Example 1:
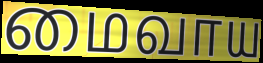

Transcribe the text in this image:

மைவாய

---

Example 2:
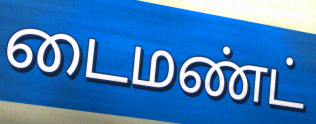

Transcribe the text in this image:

டைமண்ட்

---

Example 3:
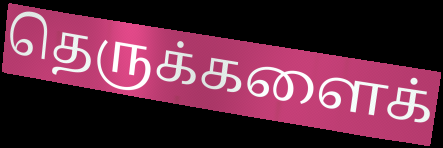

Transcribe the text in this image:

தெருக்களைக்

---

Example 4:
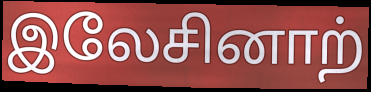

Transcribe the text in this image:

இலேசினாற்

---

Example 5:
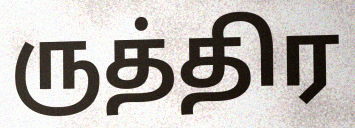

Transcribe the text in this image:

ருத்திர